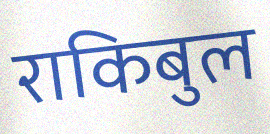
राकिबुल